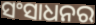
ସଂସାଧନର